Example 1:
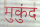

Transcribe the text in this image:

मुकुंद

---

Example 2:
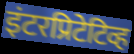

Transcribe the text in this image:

इंटरप्रिटेटिव्ह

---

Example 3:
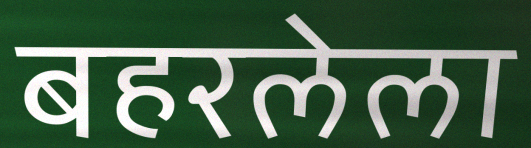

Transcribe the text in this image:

बहरलेला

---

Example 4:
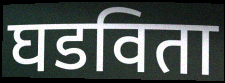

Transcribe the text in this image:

घडविता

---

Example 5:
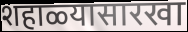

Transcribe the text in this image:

शहाळ्यासारखा